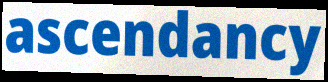
ascendancy